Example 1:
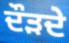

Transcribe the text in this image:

ਦੌੜਦੇ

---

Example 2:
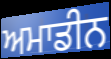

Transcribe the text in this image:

ਅਮਾਡੀਨ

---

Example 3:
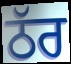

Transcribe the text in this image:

ਠੱਰ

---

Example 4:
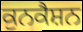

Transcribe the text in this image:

ਕੁਨਕੈਸ਼ਨ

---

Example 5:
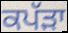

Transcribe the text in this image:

ਕਪੱੜਾ